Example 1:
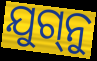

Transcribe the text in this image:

ଯୁଗ୍‌ନୁ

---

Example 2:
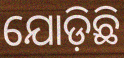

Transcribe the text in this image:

ଯୋଡ଼ିଛି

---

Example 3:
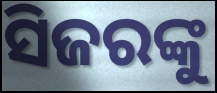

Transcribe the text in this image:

ସିଜରଙ୍କୁ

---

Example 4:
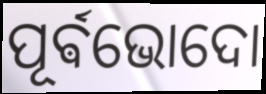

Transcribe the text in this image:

ପୂର୍ଵଭୋଦୋ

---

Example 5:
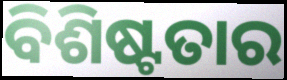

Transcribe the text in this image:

ବିଶିଷ୍ଟତାର